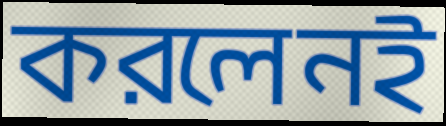
করলেনই